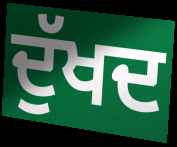
ਦੁੱਖਦ